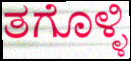
ತಗೊಳ್ಳಿ